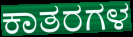
ಕಾತರಗಳ